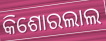
କିଶୋରଲାଲ